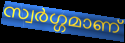
സ്വർഗ്ഗമാണ്